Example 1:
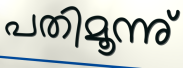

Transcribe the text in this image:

പതിമൂന്നു്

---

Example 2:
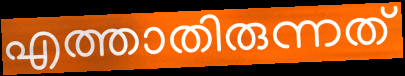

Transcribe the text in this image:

എത്താതിരുന്നത്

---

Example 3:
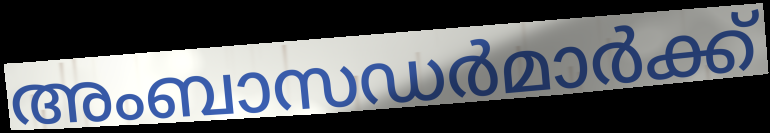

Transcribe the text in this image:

അംബാസഡർമാർക്ക്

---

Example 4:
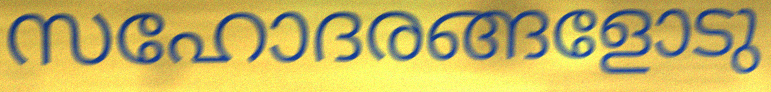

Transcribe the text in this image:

സഹോദരങ്ങളോടു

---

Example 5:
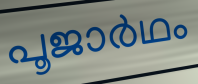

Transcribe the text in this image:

പൂജാർഥം